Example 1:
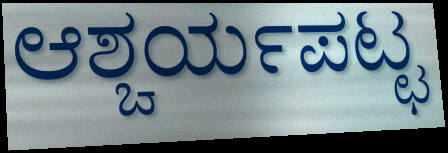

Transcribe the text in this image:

ಆಶ್ಚರ್ಯಪಟ್ಟ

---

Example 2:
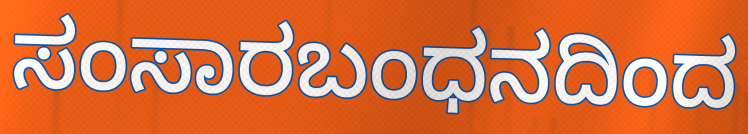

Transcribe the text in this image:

ಸಂಸಾರಬಂಧನದಿಂದ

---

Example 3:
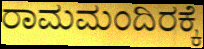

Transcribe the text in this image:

ರಾಮಮಂದಿರಕ್ಕೆ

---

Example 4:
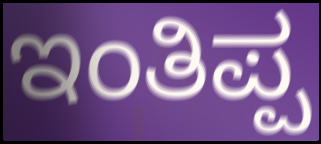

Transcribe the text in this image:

ಇಂತಿಪ್ಪ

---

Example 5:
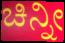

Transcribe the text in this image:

ಚಿನ್ನೀ